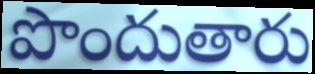
పొందుతారు